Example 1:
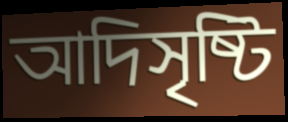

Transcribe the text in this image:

আদিসৃষ্টি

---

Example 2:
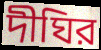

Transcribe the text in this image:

দীঘির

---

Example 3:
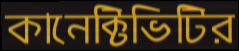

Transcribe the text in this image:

কানেক্টিভিটির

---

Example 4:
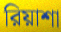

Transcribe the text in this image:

রিয়াশা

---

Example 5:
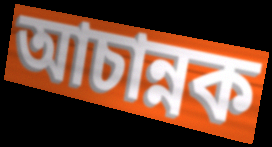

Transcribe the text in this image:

আচান্নক